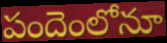
పందెంలోనూ